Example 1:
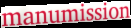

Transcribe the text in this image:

manumission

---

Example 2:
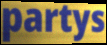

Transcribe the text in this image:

partys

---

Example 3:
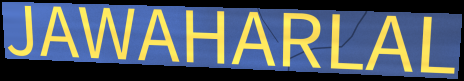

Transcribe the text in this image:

JAWAHARLAL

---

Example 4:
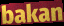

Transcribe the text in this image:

bakan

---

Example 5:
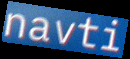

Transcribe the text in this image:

navti